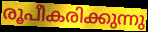
രൂപീകരിക്കുന്നു